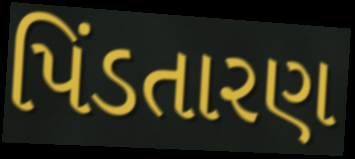
પિંડતારણ